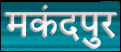
मकंदपुर